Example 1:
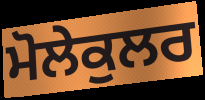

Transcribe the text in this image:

ਮੋਲੇਕੁਲਰ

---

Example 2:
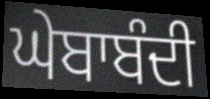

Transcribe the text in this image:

ਘੇਬਾਬੰਦੀ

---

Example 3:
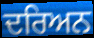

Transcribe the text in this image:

ਦਰਿਅਨ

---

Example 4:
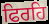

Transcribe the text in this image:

ਫਿਰਹਿ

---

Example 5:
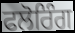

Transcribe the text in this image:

ਫਲੋਰਿੰਗ